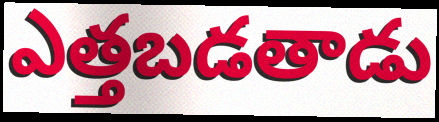
ఎత్తబడతాడు